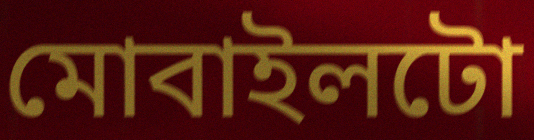
মোবাইলটো